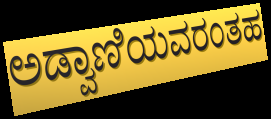
ಅಡ್ವಾಣಿಯವರಂತಹ